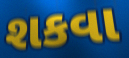
શકવા